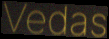
Vedas